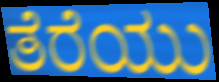
ತೆರೆಯು